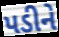
પડીને